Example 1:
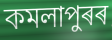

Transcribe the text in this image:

কমলাপুৰৰ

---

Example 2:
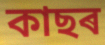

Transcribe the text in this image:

কাছৰ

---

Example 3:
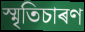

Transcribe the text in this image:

স্মৃতিচাৰণ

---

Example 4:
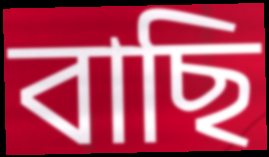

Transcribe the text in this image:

বাছি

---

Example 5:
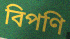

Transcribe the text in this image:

বিপণি